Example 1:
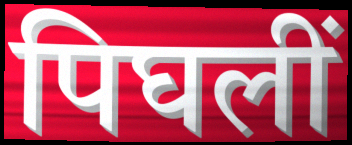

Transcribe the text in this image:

पिघलीं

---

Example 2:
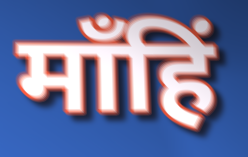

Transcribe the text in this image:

माँहिं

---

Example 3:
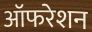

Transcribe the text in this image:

ऑफरेशन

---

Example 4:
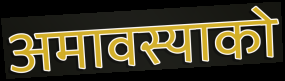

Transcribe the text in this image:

अमावस्याको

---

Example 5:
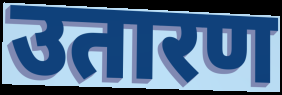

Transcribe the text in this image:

उतारण